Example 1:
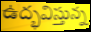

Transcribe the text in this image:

ఉద్భవిస్తున్న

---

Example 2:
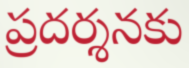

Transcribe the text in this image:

ప్రదర్శనకు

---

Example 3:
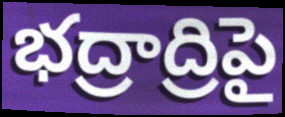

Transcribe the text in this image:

భద్రాద్రిపై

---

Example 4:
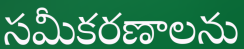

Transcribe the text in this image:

సమీకరణాలను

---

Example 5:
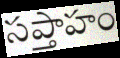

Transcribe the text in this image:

సప్తాహం